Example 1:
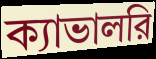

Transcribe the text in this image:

ক্যাভালরি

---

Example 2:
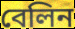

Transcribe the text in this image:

বেলিন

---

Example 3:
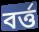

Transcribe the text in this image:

বর্ত্ত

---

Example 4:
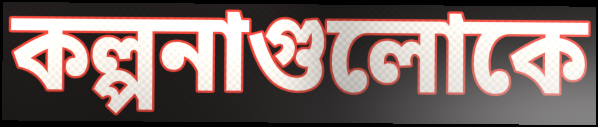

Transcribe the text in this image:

কল্পনাগুলোকে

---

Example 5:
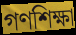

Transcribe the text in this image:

গণশিক্ষা